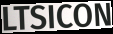
LTSICON